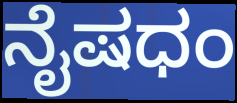
ನೈಷಧಂ